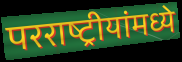
परराष्ट्रीयांमध्ये